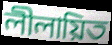
লীলায়িত